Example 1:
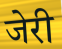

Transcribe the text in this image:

जेरी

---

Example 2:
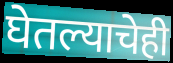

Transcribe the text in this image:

घेतल्याचेही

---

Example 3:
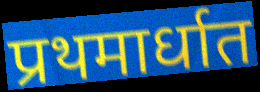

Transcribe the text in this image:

प्रथमार्धात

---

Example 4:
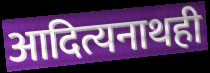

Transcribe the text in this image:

आदित्यनाथही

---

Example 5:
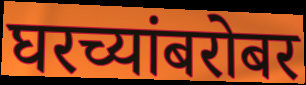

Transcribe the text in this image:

घरच्यांबरोबर